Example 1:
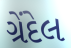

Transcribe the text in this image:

ગ્રેંદેલ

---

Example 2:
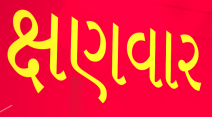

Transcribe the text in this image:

ક્ષણવાર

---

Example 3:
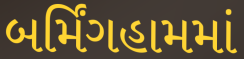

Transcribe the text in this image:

બર્મિંગહામમાં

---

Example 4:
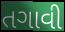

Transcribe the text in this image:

તગાવી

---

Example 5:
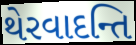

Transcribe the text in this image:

થેરવાદન્તિ